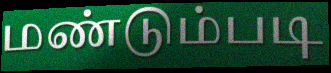
மண்டும்படி